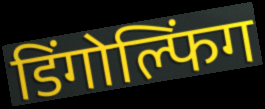
डिंगोल्फिंग